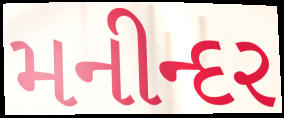
મનીન્દર